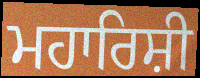
ਮਹਾਰਿਸ਼ੀ